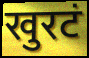
खुरटं